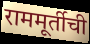
राममूर्तीची